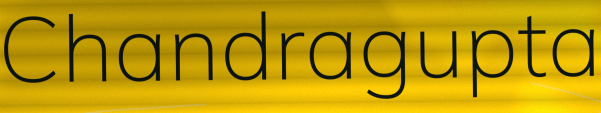
Chandragupta